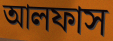
আলফাস